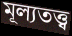
মূল্যতত্ত্ব